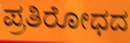
ಪ್ರತಿರೋಧದ